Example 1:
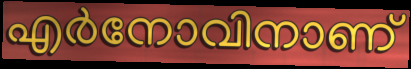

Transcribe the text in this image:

എർനോവിനാണ്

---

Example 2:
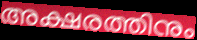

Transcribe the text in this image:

അക്ഷരത്തിനും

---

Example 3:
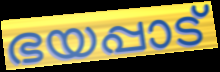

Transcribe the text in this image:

ഭയപ്പാട്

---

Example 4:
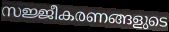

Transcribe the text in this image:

സജ്ജീകരണങ്ങളുടെ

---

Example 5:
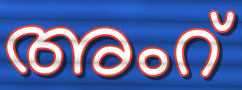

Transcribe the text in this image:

അംറ്